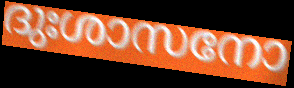
ദുഃശാസനോ